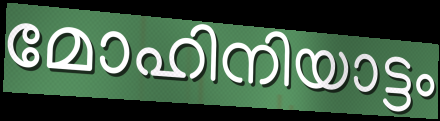
മോഹിനിയാട്ടം